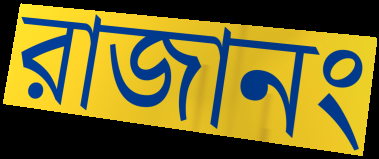
রাজানং